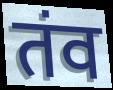
तंव